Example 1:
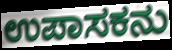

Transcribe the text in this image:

ಉಪಾಸಕನು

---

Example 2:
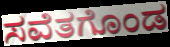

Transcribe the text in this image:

ಸವೆತಗೊಂಡ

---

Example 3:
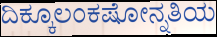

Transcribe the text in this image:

ದಿಕ್ಕೂಲಂಕಷೋನ್ನತಿಯ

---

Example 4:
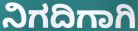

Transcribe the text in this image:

ನಿಗದಿಗಾಗಿ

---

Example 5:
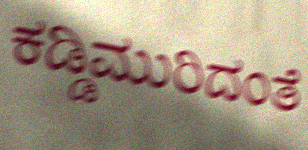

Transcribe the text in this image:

ಕಡ್ಡಿಮುರಿದಂತೆ